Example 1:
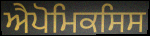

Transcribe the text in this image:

ਐਪੋਮਿਕਸਿਸ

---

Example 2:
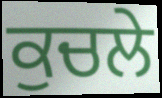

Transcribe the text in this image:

ਕੁਚਲੇ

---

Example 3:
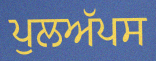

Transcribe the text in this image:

ਪੁਲਅੱਪਸ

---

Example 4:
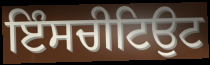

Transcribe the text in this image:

ਇੰਸਚੀਟਿਉਟ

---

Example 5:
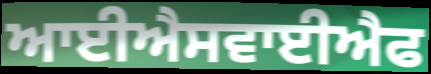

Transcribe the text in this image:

ਆਈਐਸਵਾਈਐਫ